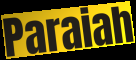
Paraiah